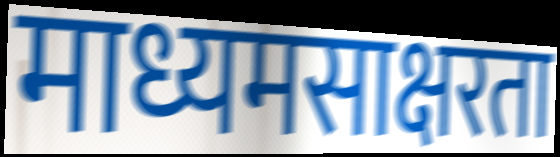
माध्यमसाक्षरता